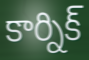
కార్నిక్